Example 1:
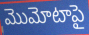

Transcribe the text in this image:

మొమోటాపై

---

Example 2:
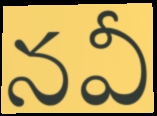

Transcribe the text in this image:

నవీ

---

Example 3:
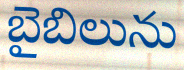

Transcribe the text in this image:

బైబిలును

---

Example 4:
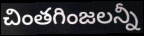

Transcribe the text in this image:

చింతగింజలన్నీ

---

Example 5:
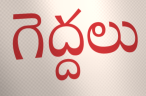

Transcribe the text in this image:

గెద్దలు